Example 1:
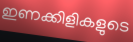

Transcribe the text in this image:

ഇണക്കിളികളുടെ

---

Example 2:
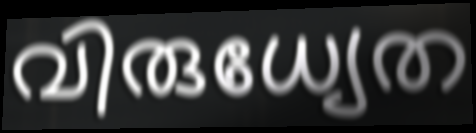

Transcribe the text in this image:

വിരുധ്യേത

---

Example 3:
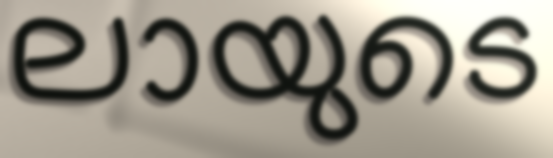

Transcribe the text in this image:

ലായുടെ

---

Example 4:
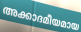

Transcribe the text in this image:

അക്കാദമീയമായ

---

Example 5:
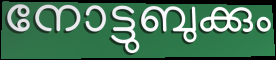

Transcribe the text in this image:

നോട്ടുബുക്കും